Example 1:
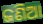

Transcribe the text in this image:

ଜଣିଆ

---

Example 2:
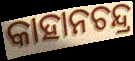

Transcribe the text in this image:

କାହାନଚନ୍ଦ୍ର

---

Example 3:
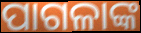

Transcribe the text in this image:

ପାଗଳାଙ୍କ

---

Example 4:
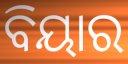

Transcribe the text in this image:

ବିୟାର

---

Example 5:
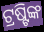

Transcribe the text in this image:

ଟ୍ରଷ୍ଟିଙ୍କ